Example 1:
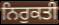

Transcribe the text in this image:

ਨਿਰੁਕਤੀ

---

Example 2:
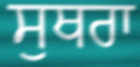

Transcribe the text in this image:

ਸੁਥਰਾ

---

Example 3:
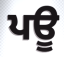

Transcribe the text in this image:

ਪਊ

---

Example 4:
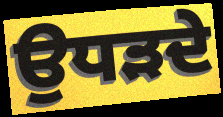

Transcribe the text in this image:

ਉਧੜਦੇ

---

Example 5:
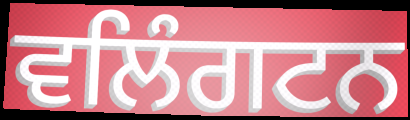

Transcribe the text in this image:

ਵਲਿੰਗਟਨ